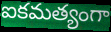
ఐకమత్యంగా